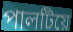
পালটিয়ে